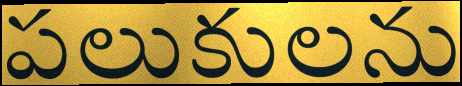
పలుకులను